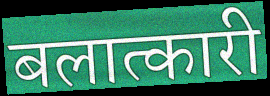
बलात्कारी